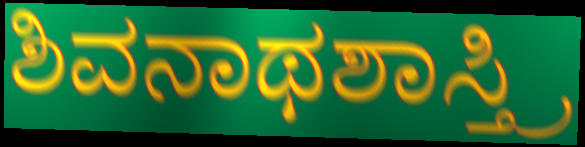
ಶಿವನಾಥಶಾಸ್ತ್ರಿ